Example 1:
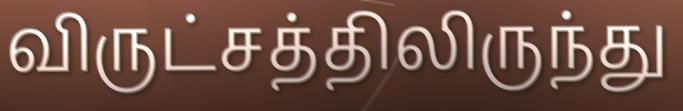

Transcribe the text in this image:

விருட்சத்திலிருந்து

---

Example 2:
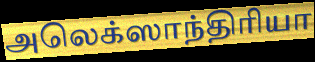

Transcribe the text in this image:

அலெக்ஸாந்திரியா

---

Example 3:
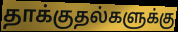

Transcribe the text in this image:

தாக்குதல்களுக்கு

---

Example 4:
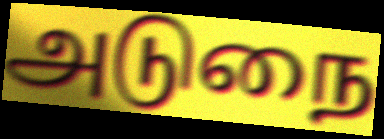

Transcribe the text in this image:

அடுநை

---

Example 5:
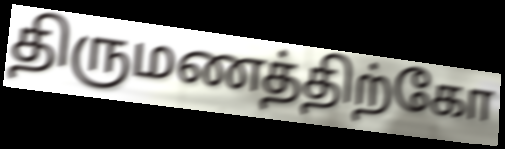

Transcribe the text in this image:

திருமணத்திற்கோ